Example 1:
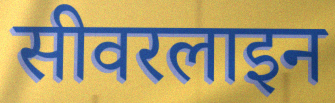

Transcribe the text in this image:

सीवरलाइन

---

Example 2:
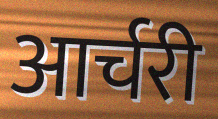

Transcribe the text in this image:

आर्चरी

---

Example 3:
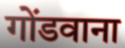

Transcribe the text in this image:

गोंडवाना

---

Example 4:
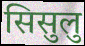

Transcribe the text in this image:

सिसुलु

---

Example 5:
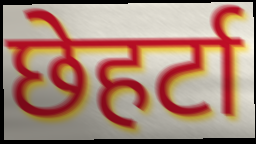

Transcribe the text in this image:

छेहर्टा